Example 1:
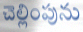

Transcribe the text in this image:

చెల్లింపును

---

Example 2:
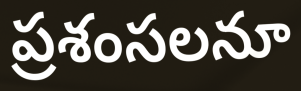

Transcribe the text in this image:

ప్రశంసలనూ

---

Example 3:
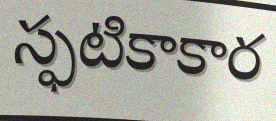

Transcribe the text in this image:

స్ఫటికాకార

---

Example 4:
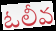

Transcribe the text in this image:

ఓలీవ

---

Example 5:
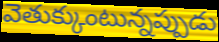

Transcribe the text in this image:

వెతుక్కుంటున్నప్పుడు